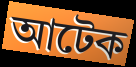
আটেক